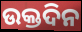
ଉକ୍ତଦିନ